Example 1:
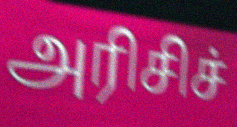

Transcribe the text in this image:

அரிசிச்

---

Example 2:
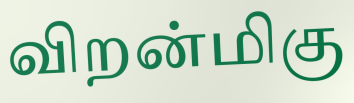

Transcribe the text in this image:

விறன்மிகு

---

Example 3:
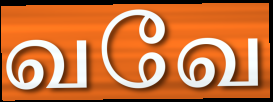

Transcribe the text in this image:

வவே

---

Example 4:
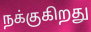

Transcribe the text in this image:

நக்குகிறது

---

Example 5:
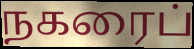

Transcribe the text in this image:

நகரைப்